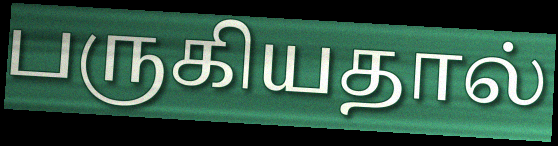
பருகியதால்